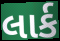
લાર્ક